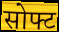
सोफ्ट